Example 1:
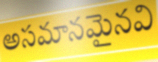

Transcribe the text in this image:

అసమానమైనవి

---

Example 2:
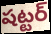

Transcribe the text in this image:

షట్టర్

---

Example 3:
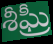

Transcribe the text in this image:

శీఘ్రీ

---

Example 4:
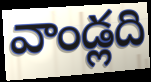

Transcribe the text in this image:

వాండ్లది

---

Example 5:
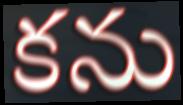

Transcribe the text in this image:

కను